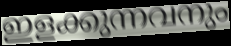
ഇളക്കുന്നവനും